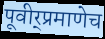
पूवीर्प्रमाणेच